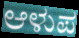
ಆಳುಪ